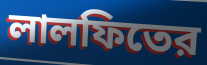
লালফিতের